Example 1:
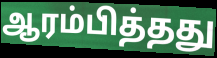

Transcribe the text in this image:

ஆரம்பித்தது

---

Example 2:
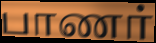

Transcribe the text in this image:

பாணர்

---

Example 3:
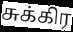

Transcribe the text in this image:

சுக்கிர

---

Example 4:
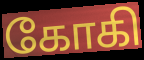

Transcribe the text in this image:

கோகி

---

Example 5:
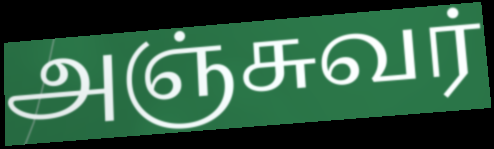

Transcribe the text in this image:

அஞ்சுவர்